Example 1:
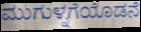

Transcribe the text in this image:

ಮುಗುಳ್ನಗೆಯೊಡನೆ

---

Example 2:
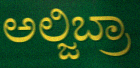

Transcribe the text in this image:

ಅಲ್ಜಿಬ್ರಾ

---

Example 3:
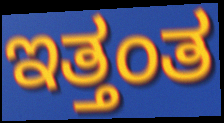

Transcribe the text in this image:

ಇತ್ತಂತ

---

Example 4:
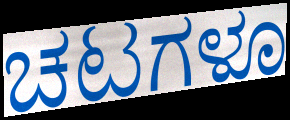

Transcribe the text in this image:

ಚಟಗಳೂ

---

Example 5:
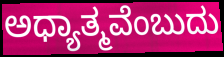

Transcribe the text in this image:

ಅಧ್ಯಾತ್ಮವೆಂಬುದು